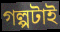
গল্পটাই